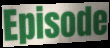
Episode